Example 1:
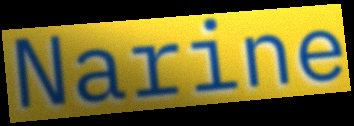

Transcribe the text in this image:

Narine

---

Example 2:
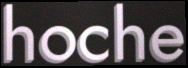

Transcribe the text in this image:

hoche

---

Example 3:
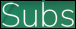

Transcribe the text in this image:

Subs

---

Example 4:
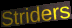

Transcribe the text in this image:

Striders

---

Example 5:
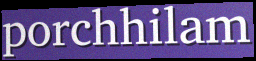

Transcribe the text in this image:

porchhilam